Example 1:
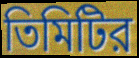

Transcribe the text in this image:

তিমিটির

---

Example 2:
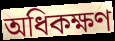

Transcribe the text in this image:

অধিকক্ষণ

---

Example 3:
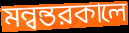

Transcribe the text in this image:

মন্বন্তরকালে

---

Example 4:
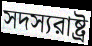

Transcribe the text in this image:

সদস্যরাষ্ট্র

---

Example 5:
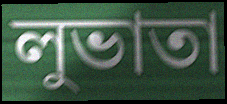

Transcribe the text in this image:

লুভাতা